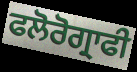
ਫਲੋਰੋਗ੍ਰਾਫੀ